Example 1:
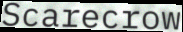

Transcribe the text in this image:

Scarecrow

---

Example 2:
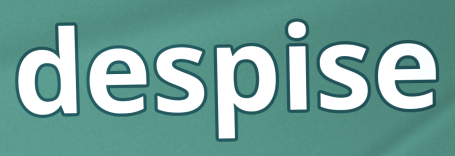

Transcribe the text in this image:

despise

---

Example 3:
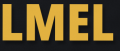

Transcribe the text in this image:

LMEL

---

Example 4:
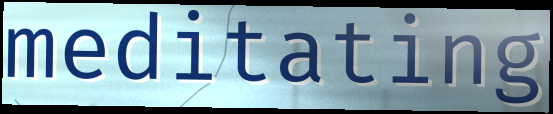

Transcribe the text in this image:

meditating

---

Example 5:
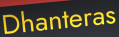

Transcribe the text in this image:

Dhanteras